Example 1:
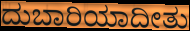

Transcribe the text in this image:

ದುಬಾರಿಯಾದೀತು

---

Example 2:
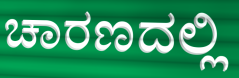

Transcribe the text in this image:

ಚಾರಣದಲ್ಲಿ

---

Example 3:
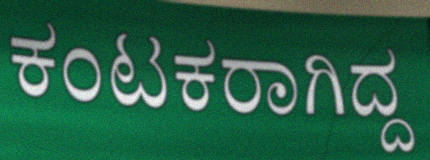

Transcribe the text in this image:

ಕಂಟಕರಾಗಿದ್ದ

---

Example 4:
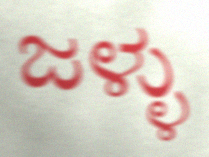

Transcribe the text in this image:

ಜಳ್ಳು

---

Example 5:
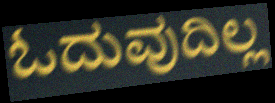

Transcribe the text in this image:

ಓದುವುದಿಲ್ಲ